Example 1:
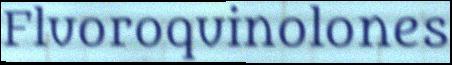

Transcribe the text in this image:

Fluoroquinolones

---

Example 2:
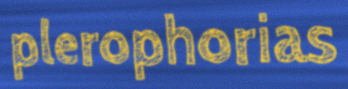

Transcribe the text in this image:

plerophorias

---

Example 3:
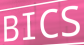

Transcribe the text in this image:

BICS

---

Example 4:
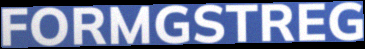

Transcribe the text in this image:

FORMGSTREG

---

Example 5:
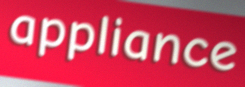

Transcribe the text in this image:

appliance